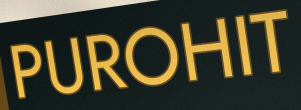
PUROHIT